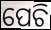
ପେଚି